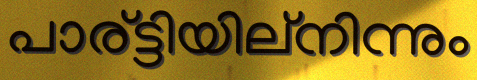
പാര്ട്ടിയില്നിന്നും